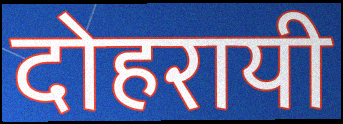
दोहरायी